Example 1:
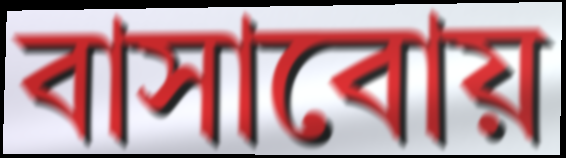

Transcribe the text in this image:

বাসাবোয়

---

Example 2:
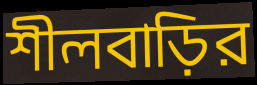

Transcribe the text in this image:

শীলবাড়ির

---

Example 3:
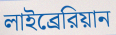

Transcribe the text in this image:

লাইব্রেরিয়ান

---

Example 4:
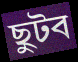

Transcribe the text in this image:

ছুটব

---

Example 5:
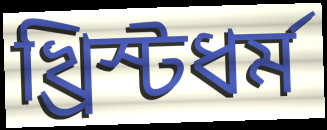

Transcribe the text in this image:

খ্রিস্টধর্ম